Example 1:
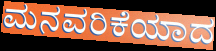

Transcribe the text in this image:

ಮನವರಿಕೆಯಾದ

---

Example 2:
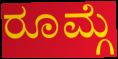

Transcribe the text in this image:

ರೂಮ್ಗೆ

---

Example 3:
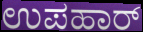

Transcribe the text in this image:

ಉಪಹಾರ್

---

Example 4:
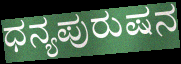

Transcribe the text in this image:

ಧನ್ಯಪುರುಷನ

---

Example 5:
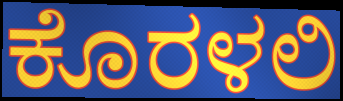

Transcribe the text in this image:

ಕೊರಳಲಿ